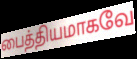
பைத்தியமாகவே